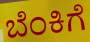
ಬೆಂಕಿಗೆ